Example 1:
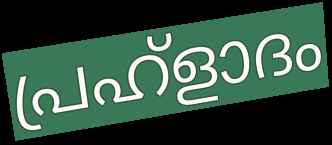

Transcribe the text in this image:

പ്രഹ്ളാദം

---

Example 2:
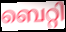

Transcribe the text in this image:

ബെറ്റി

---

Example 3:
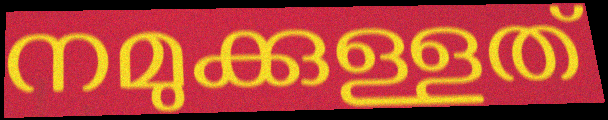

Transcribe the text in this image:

നമുക്കുള്ളത്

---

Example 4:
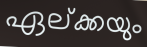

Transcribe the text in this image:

ഏല്ക്കയും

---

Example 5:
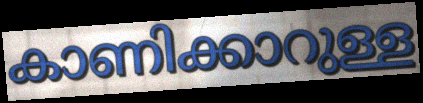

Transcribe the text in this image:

കാണിക്കാറുള്ള